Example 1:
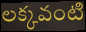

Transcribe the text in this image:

లక్కవంటి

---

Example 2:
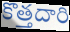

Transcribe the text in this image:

కొత్తదారి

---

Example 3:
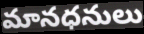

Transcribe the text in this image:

మానధనులు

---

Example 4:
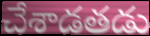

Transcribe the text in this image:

చేశాడతడు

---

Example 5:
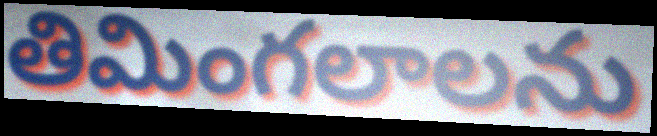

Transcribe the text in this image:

తిమింగలాలను